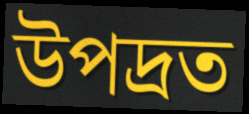
উপদ্রত